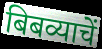
बिबव्याचें